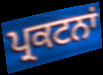
ਪ੍ਰਕਟਨਾਂ